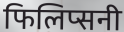
फिलिप्सनी